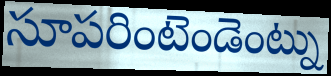
సూపరింటెండెంట్ను